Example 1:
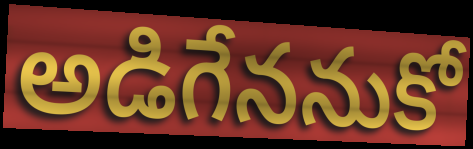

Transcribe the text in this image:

అడిగేననుకో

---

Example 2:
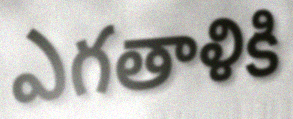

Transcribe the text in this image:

ఎగతాళికి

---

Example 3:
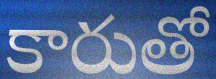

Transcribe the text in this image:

కారుతో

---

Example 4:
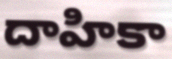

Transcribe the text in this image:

దాహికా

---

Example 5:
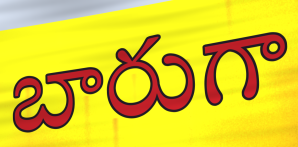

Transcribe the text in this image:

బారుగా